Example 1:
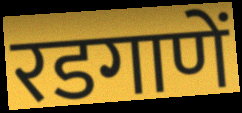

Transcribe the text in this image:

रडगाणें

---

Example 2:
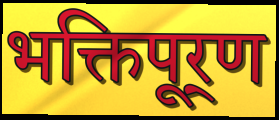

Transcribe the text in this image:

भक्तिपूर्ण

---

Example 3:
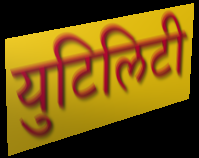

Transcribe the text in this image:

युटिलिटी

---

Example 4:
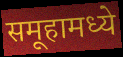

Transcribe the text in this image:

समूहामध्ये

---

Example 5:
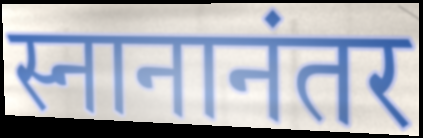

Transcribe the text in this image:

स्नानानंतर